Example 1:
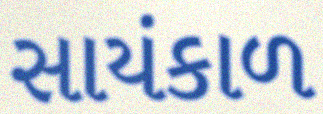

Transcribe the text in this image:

સાયંકાળ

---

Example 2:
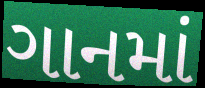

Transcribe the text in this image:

ગાનમાં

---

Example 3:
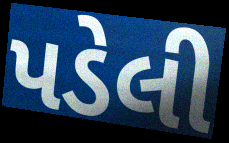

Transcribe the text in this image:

પડેલી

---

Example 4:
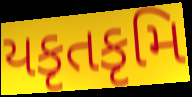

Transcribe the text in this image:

યકૃતકૃમિ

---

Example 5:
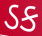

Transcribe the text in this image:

ડક